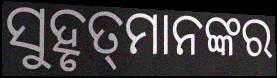
ସୁହୃତ୍‌ମାନଙ୍କର